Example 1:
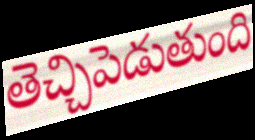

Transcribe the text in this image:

తెచ్చిపెడుతుంది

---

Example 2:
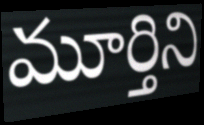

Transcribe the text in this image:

మూర్తిని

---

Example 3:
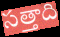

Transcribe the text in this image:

సత్తాది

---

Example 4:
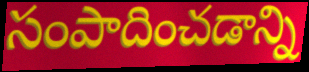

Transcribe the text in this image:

సంపాదించడాన్ని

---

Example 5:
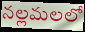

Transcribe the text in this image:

నల్లమలలో